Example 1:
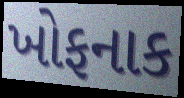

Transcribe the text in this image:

ખોફનાક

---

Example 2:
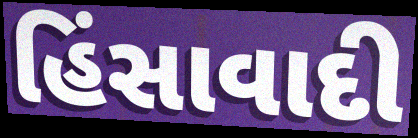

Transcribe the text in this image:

હિંસાવાદી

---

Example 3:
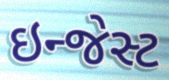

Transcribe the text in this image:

ઇન્જેસ્ટ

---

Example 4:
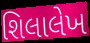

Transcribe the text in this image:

શિલાલેખ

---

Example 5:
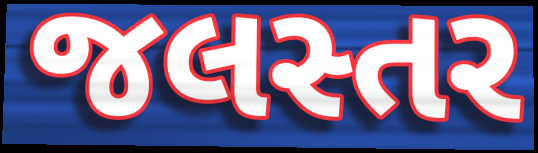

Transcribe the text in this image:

જલસ્તર